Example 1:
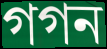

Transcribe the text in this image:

গগন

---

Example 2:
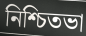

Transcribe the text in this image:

নিশ্চিতভা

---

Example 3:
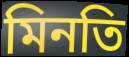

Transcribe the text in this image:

মিনতি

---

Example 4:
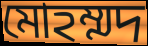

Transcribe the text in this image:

মোহম্মদ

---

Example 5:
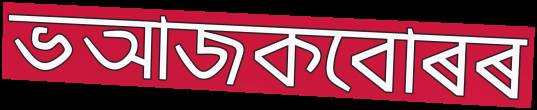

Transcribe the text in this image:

ভআজকবোৰৰ